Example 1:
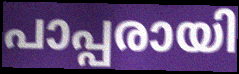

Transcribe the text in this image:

പാപ്പരായി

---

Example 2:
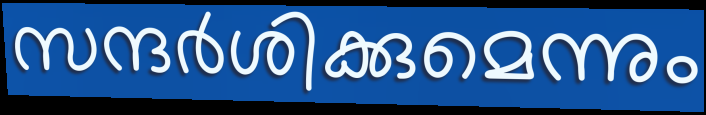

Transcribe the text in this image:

സന്ദർശിക്കുമെന്നും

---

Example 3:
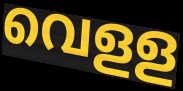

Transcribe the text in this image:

വെളള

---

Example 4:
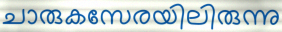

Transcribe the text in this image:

ചാരുകസേരയിലിരുന്നു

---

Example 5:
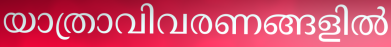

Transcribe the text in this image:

യാത്രാവിവരണങ്ങളിൽ